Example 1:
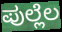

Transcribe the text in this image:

ಪುಲ್ಲೆಲ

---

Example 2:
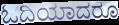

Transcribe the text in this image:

ಓದಿಯಾದರೂ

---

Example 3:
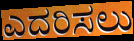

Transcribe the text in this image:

ಎದರಿಸಲು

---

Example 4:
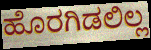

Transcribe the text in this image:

ಹೊರಗಿಡಲಿಲ್ಲ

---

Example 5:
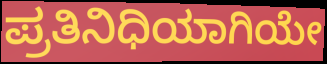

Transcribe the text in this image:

ಪ್ರತಿನಿಧಿಯಾಗಿಯೇ